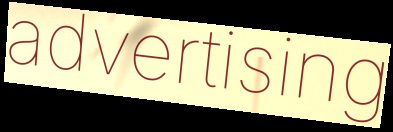
advertising